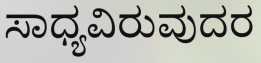
ಸಾಧ್ಯವಿರುವುದರ